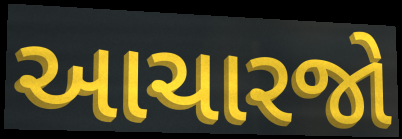
આચારજો